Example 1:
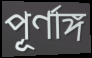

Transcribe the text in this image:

পূর্ণাঙ্গ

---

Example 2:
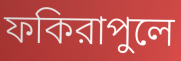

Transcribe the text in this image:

ফকিরাপুলে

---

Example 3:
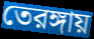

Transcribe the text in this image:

তেরঙ্গায়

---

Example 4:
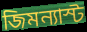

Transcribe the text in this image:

জিমন্যাস্ট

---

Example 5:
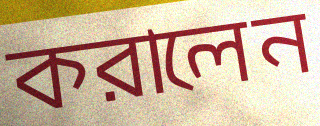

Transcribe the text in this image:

করালেন